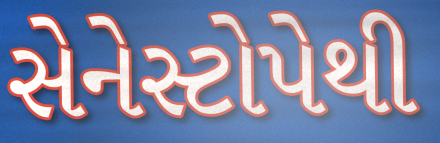
સેનેસ્ટોપેથી